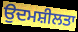
ਉਦਮਸ਼ੀਲਤਾ